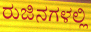
ರುಜಿನಗಳಲ್ಲಿ